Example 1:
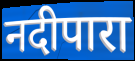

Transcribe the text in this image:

नदीपारा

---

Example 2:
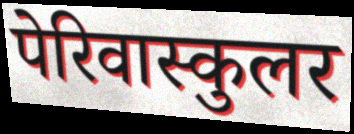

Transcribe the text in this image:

पेरिवास्कुलर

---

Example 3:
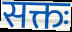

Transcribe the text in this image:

सक्तः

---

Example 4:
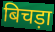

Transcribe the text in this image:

बिचड़ा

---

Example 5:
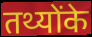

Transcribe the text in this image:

तथ्योंके